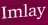
Imlay